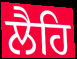
ਲੈਹਿ